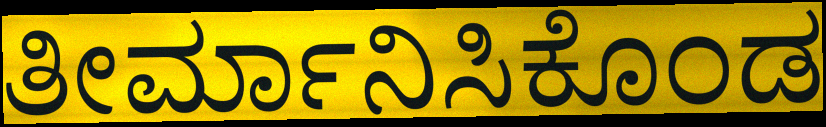
ತೀರ್ಮಾನಿಸಿಕೊಂಡ